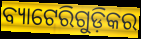
ବ୍ୟାଟେରିଗୁଡ଼ିକର